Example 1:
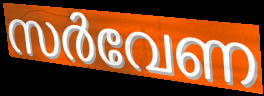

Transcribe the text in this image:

സർവേണ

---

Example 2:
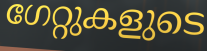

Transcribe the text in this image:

ഗേറ്റുകളുടെ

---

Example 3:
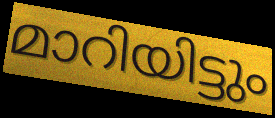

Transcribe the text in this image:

മാറിയിട്ടും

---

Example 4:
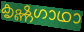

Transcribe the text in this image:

കൃഷ്ണഗാഥാ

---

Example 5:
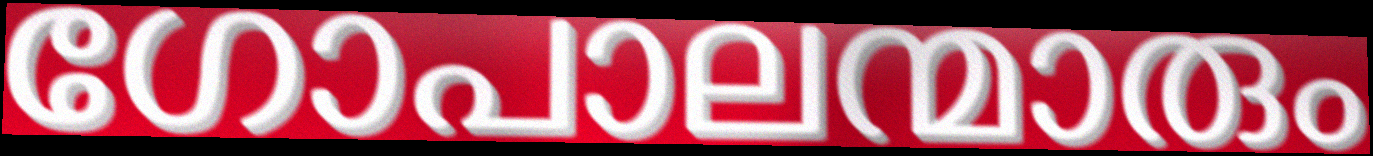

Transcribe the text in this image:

ഗോപാലന്മാരും